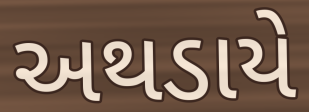
અથડાયે